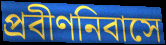
প্রবীণনিবাসে